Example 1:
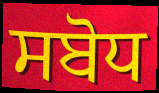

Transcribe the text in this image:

ਸਬੋਧ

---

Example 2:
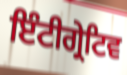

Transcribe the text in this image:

ਇੰਟੀਗ੍ਰੇਟਿਵ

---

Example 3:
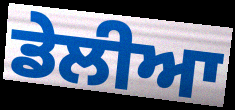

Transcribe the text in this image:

ਡੇਲੀਆ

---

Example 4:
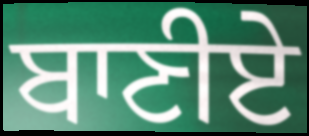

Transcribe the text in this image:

ਬਾਣੀਏ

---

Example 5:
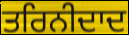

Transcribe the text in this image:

ਤਰਿਨੀਦਾਦ